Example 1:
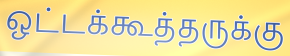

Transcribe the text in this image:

ஒட்டக்கூத்தருக்கு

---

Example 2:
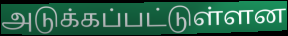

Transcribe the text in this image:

அடுக்கப்பட்டுள்ளன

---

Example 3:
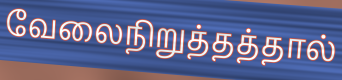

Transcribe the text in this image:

வேலைநிறுத்தத்தால்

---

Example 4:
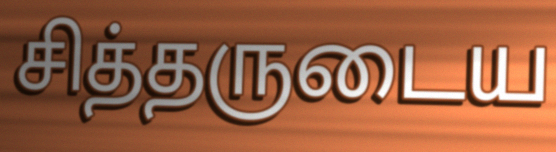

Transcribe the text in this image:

சித்தருடைய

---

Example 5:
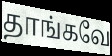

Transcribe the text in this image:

தாங்கவே